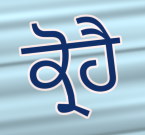
ਕ੍ਰੋਹੈ